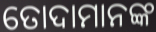
ତୋଦାମାନଙ୍କ